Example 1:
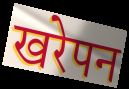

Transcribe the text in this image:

खरेपन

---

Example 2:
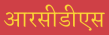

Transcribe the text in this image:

आरसीडीएस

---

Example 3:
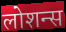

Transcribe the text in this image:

लोशन्स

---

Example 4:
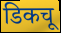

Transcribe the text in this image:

डिकचू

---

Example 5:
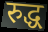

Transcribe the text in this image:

रुद्ध